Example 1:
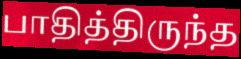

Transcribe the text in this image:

பாதித்திருந்த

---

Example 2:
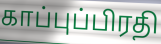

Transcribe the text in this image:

காப்புப்பிரதி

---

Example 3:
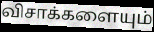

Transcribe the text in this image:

விசாக்களையும்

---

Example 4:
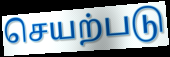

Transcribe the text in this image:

செயற்படு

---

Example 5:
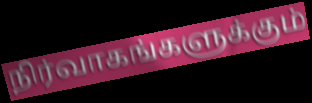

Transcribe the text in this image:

நிர்வாகங்களுக்கும்